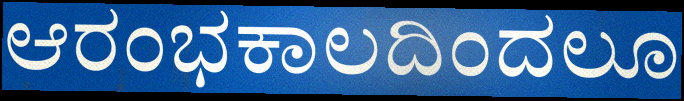
ಆರಂಭಕಾಲದಿಂದಲೂ